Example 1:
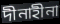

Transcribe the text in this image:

দীনাহীনা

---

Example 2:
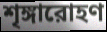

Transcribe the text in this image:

শৃঙ্গারোহণ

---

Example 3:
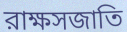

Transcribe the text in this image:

রাক্ষসজাতি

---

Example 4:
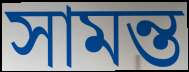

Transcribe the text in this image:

সামন্ত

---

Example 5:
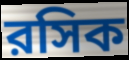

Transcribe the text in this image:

রসিক